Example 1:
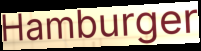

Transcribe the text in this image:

Hamburger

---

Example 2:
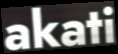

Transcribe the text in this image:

akati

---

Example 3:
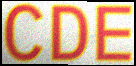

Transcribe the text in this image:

CDE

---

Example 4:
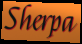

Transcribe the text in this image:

Sherpa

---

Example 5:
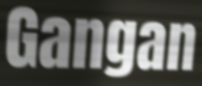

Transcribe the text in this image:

Gangan